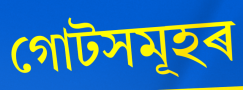
গোটসমূহৰ